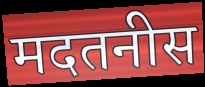
मदतनीस